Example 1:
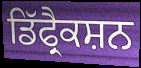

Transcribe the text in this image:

ਡਿੱਫ੍ਰੈਕਸ਼ਨ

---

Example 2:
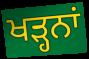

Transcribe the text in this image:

ਖੜ੍ਹਨਾਂ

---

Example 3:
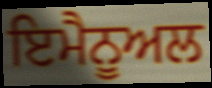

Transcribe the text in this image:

ਇਮੈਨੂਅਲ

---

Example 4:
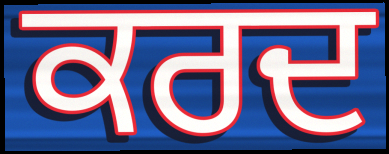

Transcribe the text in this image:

ਕਰਦ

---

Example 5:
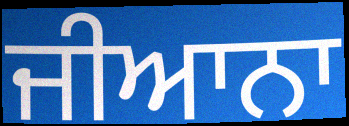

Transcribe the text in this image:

ਜੀਆਨਾ